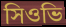
সিওভি